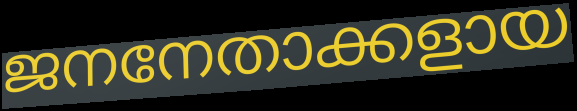
ജനനേതാക്കളായ